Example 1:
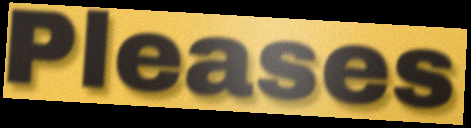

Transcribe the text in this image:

Pleases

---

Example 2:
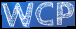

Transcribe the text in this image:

WCP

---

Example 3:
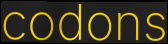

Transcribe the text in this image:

codons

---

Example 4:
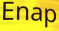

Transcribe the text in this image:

Enap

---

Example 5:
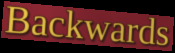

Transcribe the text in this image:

Backwards